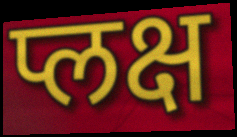
प्लक्ष